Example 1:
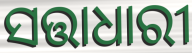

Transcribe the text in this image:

ସତ୍ତାଧାରୀ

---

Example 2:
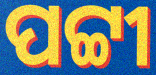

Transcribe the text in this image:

ପଟ୍ଟୀ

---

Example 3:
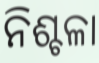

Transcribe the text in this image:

ନିଶ୍ଚଳା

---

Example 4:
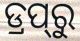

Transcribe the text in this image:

ଡ୍ରପ୍‍ରୁ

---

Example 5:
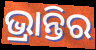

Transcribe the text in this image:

ଭ୍ରାନ୍ତିର